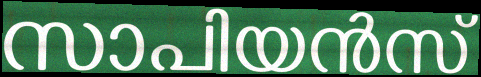
സാപിയൻസ്